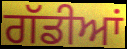
ਗੱਡੀਆਂ